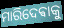
ମାରିଦେଵାକୁ